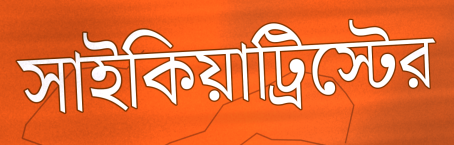
সাইকিয়াট্রিস্টের